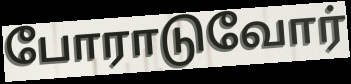
போராடுவோர்